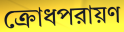
ক্রোধপরায়ণ